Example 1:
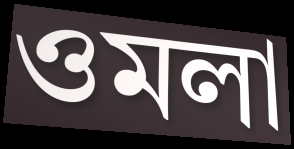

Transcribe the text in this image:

ওমলা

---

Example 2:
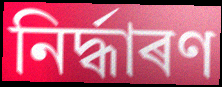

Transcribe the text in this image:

নিৰ্দ্ধাৰণ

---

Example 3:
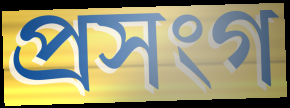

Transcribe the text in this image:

প্ৰসংগ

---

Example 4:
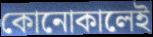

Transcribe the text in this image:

কোনোকালেই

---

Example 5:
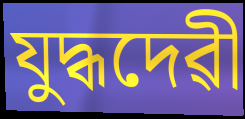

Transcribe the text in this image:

যুদ্ধদেৱী